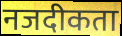
नजदीकता